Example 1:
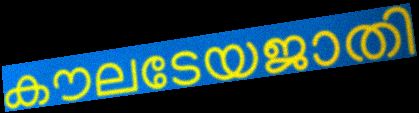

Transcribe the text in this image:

കൗലടേയജാതി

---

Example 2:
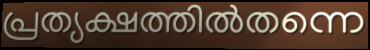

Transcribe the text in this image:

പ്രത്യക്ഷത്തിൽതന്നെ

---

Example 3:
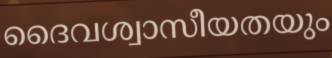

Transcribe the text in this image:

ദൈവശ്വാസീയതയും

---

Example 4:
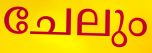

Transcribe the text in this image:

ചേലും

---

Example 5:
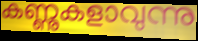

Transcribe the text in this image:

കണ്ണുകളാവുന്നു